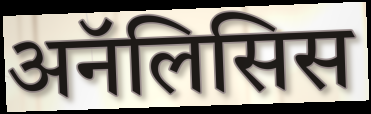
अनॅलिसिस